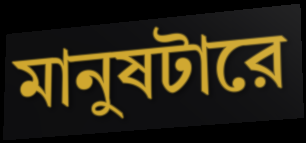
মানুষটারে